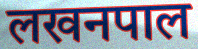
लखनपाल